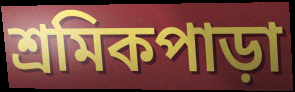
শ্রমিকপাড়া